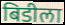
बिडीला